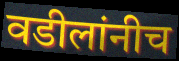
वडीलांनीच